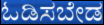
ಓಡಿಸಬೇಡ